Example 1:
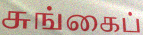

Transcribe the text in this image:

சுங்கைப்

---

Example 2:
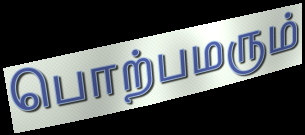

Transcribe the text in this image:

பொற்பமரும்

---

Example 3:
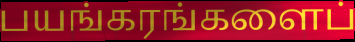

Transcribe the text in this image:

பயங்கரங்களைப்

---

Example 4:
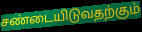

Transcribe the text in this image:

சண்டையிடுவதற்கும்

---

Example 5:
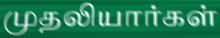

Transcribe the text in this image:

முதலியார்கள்